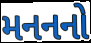
મનનનો